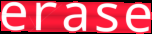
erase